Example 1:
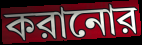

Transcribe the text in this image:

করানোর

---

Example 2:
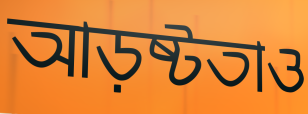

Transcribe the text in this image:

আড়ষ্টতাও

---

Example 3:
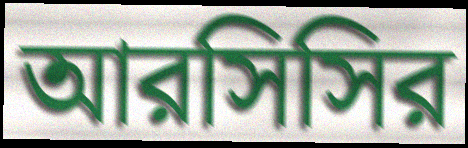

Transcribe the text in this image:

আরসিসির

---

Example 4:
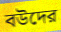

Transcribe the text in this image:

বউদের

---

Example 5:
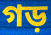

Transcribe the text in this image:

গড়